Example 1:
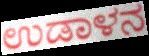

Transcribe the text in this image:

ಉಡಾಳನ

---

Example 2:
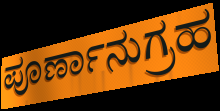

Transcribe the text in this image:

ಪೂರ್ಣಾನುಗ್ರಹ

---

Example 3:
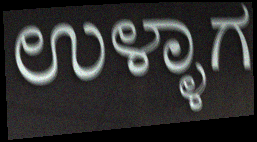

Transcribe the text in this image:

ಉಳ್ಳಾಗ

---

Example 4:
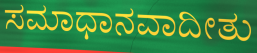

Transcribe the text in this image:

ಸಮಾಧಾನವಾದೀತು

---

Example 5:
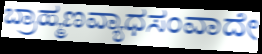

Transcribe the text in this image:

ಬ್ರಾಹ್ಮಣವ್ಯಾಧಸಂವಾದೇ